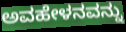
ಅವಹೇಳನವನ್ನು